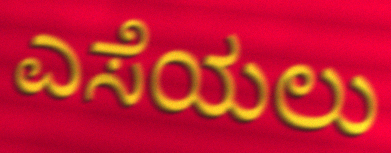
ಎಸೆಯಲು